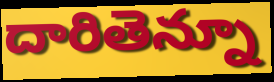
దారితెన్నూ